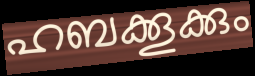
ഹബക്കൂക്കും